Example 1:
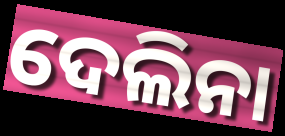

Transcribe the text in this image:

ଦେଲିନା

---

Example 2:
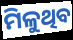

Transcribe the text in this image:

ମିଳୁଥିବ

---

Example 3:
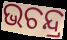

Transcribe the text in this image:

ଭଚନ୍ଦ୍ର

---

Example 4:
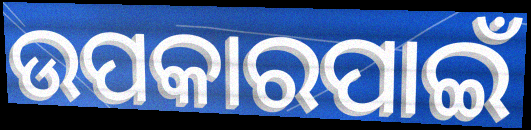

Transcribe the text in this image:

ଉପକାରପାଇଁ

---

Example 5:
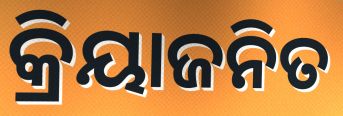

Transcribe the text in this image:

କ୍ରିୟାଜନିତ